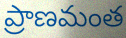
ప్రాణమంత